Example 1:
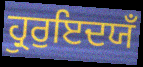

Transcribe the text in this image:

ਹ੍ਰੁਰੁਇਦਯਁ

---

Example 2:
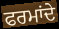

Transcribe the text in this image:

ਫਰਮਾਂਦੇ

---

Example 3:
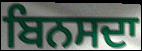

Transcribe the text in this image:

ਬਿਨਸਦਾ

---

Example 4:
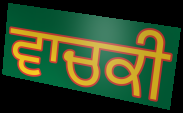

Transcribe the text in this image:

ਵਾਚਕੀ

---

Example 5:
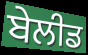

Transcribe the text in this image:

ਬੇਲੀਡ